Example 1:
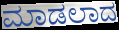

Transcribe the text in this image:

ಮಾಡಲಾದ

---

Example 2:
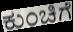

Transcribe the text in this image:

ಕುಂಚಿಗೆ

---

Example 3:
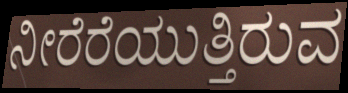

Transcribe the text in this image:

ನೀರೆರೆಯುತ್ತಿರುವ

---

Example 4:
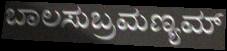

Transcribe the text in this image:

ಬಾಲಸುಬ್ರಮಣ್ಯಮ್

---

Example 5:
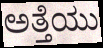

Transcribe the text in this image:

ಅತ್ತೆಯು